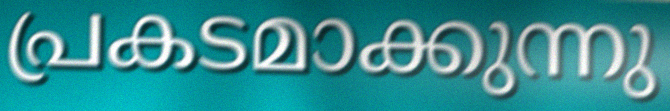
പ്രകടമാക്കുന്നു